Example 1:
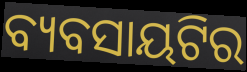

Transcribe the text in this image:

ବ୍ୟବସାୟଟିର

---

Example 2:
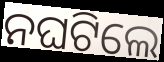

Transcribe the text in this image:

ନଘଟିଲେ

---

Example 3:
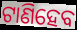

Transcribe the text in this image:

ଟାଣିହେବ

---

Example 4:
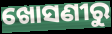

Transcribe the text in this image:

ଖୋସଣୀରୁ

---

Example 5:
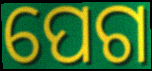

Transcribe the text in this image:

ପେଗ